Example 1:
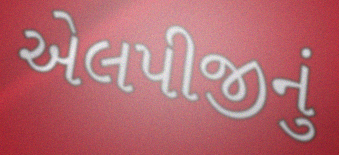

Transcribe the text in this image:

એલપીજીનું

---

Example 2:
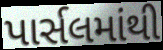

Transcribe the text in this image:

પાર્સલમાંથી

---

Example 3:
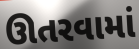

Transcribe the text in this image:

ઊતરવામાં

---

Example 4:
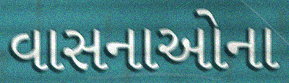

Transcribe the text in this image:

વાસનાઓના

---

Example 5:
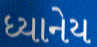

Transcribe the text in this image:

ધ્યાનેય